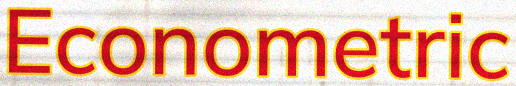
Econometric